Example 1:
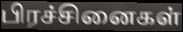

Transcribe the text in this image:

பிரச்சினைகள்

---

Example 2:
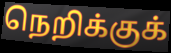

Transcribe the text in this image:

நெறிக்குக்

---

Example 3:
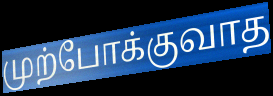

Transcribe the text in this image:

முற்போக்குவாத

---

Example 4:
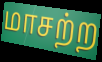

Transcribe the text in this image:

மாசற்ற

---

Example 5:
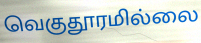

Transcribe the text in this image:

வெகுதூரமில்லை